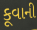
કૂવાની